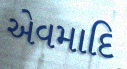
એવમાદિ